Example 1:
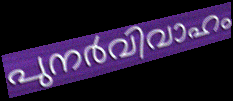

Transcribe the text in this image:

പുനർവിവാഹം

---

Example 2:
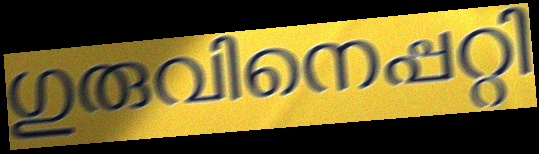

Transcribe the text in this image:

ഗുരുവിനെപ്പറ്റി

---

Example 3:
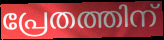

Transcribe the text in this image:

പ്രേതത്തിന്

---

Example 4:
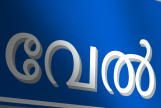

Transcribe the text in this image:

വേൽ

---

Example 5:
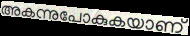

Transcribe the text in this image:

അകന്നുപോകുകയാണ്